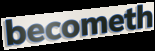
becometh